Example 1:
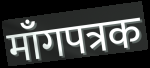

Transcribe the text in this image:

माँगपत्रक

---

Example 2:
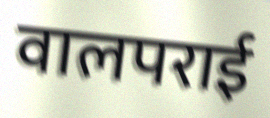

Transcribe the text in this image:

वालपराई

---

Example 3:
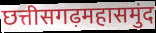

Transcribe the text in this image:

छत्तीसगढ़महासमुंद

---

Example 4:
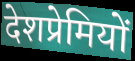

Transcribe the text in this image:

देशप्रेमियों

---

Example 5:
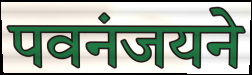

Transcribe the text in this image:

पवनंजयने